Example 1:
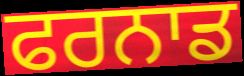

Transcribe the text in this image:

ਫਰਨਾਡ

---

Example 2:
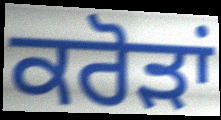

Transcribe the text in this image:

ਕਰੋਡ਼ਾਂ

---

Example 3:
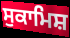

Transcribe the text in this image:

ਸੁਕਾਮਿਸ਼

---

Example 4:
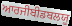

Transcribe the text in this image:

ਆਰਜੀਬੀਡਬਲਯੂ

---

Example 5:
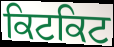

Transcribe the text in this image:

ਕਿਟਕਿਟ